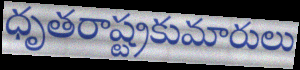
ధృతరాష్ట్రకుమారులు